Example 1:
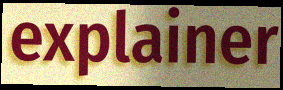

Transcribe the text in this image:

explainer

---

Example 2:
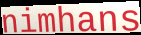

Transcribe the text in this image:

nimhans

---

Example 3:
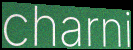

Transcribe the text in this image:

charni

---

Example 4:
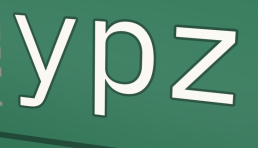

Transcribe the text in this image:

ypz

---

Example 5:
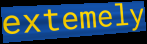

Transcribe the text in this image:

extemely